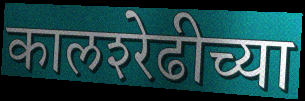
कालश्रेढीच्या